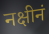
नक्षीनं